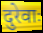
दुरेवाः